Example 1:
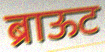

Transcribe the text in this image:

ब्राऊट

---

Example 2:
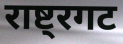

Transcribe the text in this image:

राष्ट्रगट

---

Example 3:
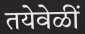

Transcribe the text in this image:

तयेवेळीं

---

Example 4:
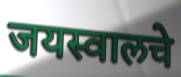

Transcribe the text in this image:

जयस्वालचे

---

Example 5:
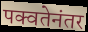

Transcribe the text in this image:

पक्वतेनंतर